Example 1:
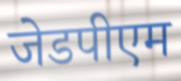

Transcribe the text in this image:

जेडपीएम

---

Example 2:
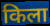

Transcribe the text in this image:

किला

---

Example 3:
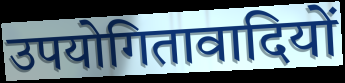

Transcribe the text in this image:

उपयोगितावादियों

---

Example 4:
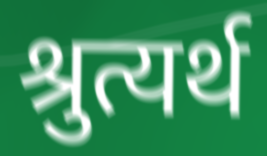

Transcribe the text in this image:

श्रुत्यर्थ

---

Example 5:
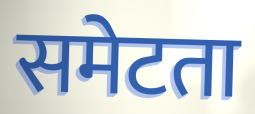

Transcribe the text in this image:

समेटता